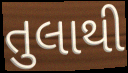
તુલાથી